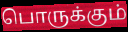
பொருக்கும்